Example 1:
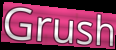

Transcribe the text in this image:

Grush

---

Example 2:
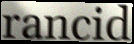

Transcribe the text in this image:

rancid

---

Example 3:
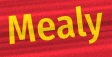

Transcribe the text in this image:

Mealy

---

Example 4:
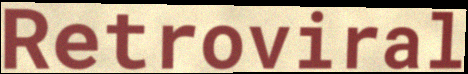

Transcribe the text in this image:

Retroviral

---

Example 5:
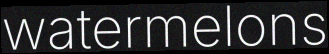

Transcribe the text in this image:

watermelons